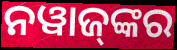
ନୱାଜ୍‍ଙ୍କର